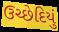
ઉચ્છેદિયું